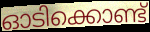
ഓടിക്കൊണ്ട്